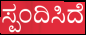
ಸ್ಪಂದಿಸಿದೆ